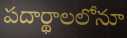
పదార్థాలలోనూ